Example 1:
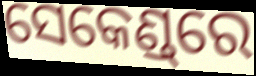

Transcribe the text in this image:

ସେକେଣ୍ଡ୍‌ରେ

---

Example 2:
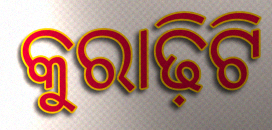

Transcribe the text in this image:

କୁରାଢ଼ିଟି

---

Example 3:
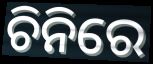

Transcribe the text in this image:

ଚିନିରେ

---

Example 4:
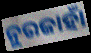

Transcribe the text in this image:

ନୁରଜାହାଁ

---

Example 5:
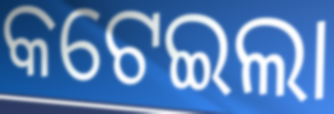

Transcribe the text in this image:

କଟେଇଲା